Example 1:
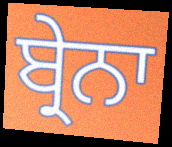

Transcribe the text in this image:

ਬ੍ਰੇਨਾ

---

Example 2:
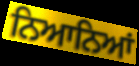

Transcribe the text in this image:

ਨਿਆਨਿਆਂ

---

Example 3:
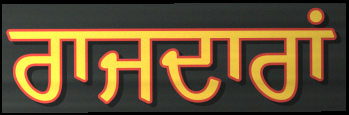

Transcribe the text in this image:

ਰਾਜਦਾਰਾਂ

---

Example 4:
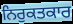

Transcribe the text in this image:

ਨਿਰੁਕਤਕਾਰ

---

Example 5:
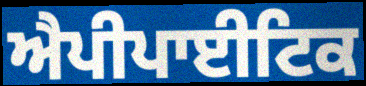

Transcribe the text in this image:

ਐਪੀਪਾਈਟਿਕ